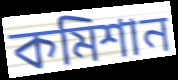
কমিশান